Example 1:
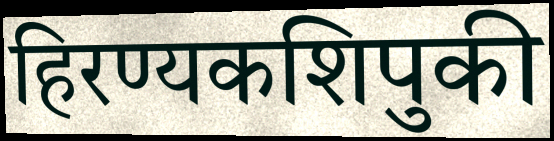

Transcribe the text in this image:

हिरण्यकशिपुकी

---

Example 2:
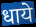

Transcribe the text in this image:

धाये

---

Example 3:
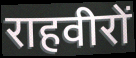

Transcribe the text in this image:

राहवीरों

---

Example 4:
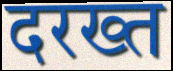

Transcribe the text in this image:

दरख्त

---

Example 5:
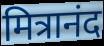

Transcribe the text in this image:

मित्रानंद